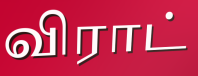
விராட்